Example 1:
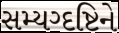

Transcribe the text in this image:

સમ્યગ્દષ્ટિને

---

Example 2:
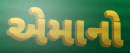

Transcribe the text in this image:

એમાનો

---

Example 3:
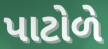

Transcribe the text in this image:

પાટોળે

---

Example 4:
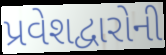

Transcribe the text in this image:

પ્રવેશદ્વારોની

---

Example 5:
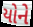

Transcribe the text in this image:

યોને